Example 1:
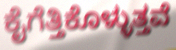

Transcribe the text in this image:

ಕೈಗೆತ್ತಿಕೊಳ್ಳುತ್ತವೆ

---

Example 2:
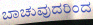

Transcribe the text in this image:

ಬಾಚುವುದರಿಂದ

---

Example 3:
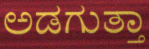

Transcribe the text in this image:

ಅಡಗುತ್ತಾ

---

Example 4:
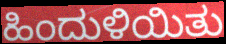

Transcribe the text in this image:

ಹಿಂದುಳಿಯಿತು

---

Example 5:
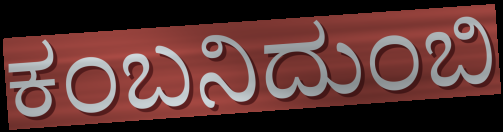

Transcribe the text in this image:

ಕಂಬನಿದುಂಬಿ